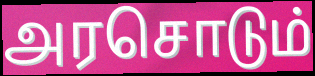
அரசொடும்